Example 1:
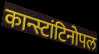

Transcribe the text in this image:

कान्स्टांटिनोपल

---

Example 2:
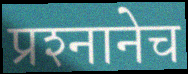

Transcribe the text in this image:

प्रश्नानेच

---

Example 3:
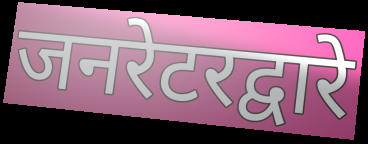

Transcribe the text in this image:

जनरेटरद्वारे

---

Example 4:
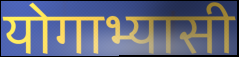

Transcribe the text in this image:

योगाभ्यासी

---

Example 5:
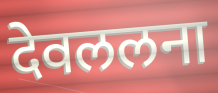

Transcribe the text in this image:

देवललना